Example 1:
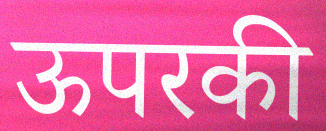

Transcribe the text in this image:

ऊपरकी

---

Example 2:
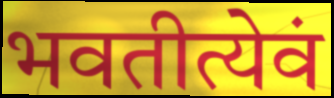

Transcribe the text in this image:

भवतीत्येवं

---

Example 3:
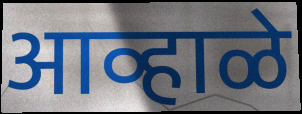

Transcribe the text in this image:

आव्हाळे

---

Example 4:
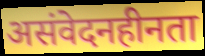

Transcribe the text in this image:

असंवेदनहीनता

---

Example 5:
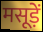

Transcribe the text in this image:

मसूड़ें